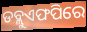
ଡବ୍ଲୁଏଫପିରେ